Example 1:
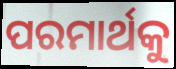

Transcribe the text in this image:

ପରମାର୍ଥକୁ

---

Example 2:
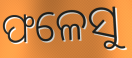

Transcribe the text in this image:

ଫଳେସୁ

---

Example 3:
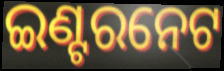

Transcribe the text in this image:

ଇଣ୍ଟରନେଟ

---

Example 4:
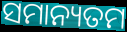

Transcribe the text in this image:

ସମାନ୍ୟତମ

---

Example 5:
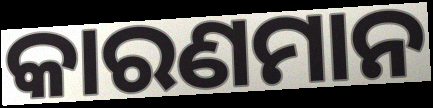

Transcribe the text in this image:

କାରଣମାନ